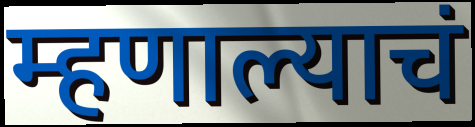
म्हणाल्याचं